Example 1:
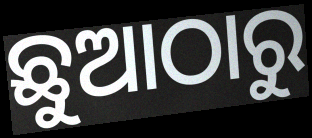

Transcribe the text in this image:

ଛୁଆଠାରୁ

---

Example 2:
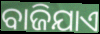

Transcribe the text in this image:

ବାଜିଯାଏ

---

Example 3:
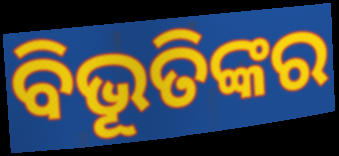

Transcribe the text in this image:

ବିଭୂତିଙ୍କର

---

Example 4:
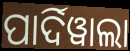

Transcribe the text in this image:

ପାର୍ଦିୱାଲା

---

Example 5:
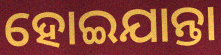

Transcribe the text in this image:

ହୋଇଯାନ୍ତା